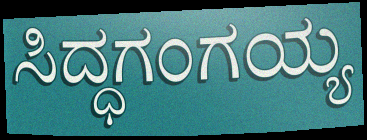
ಸಿದ್ಧಗಂಗಯ್ಯ